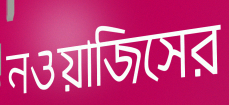
নওয়াজিসের